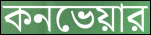
কনভেয়ার